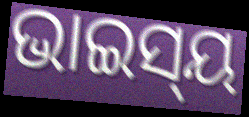
ଭାଇସ୍‌ୟ